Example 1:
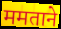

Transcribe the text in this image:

ममताने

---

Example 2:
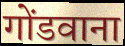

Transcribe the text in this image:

गोंडवाना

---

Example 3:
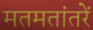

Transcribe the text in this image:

मतमतांतरें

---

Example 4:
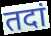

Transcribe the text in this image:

तदां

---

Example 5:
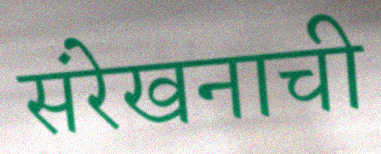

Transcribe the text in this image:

संरेखनाची